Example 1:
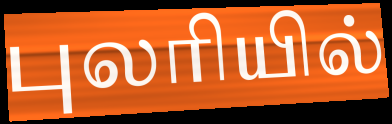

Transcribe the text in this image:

புலரியில்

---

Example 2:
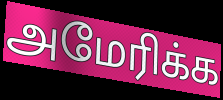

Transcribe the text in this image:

அமேரிக்க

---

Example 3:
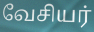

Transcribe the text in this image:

வேசியர்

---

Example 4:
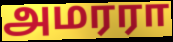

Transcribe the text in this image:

அமரரா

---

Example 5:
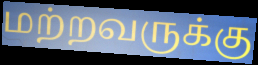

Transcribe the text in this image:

மற்றவருக்கு